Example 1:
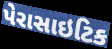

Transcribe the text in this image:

પેરાસાઇટિક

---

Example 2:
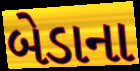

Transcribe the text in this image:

બેડાના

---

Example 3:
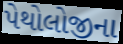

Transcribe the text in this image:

પેથોલોજીના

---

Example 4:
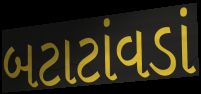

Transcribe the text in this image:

બટાટાંવડાં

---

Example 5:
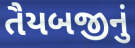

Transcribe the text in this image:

તૈયબજીનું